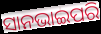
ସାନଭାଇପରି